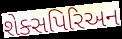
શેક્સપિરિઅન